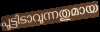
പൂട്ടിടാവുന്നതുമായ